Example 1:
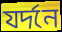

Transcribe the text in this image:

যর্দনে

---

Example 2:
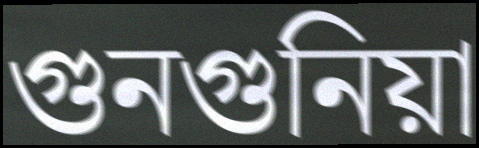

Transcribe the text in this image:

গুনগুনিয়া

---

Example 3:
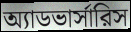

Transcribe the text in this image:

অ্যাডভার্সারিস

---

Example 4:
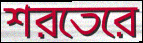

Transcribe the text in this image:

শরতেরে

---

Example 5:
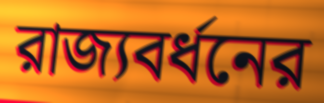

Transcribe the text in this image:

রাজ্যবর্ধনের